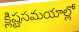
క్లిష్టసమయాల్లో